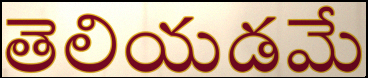
తెలియడమే